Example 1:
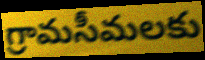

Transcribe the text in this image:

గ్రామసీమలకు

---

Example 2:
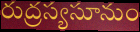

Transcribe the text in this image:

రుద్రస్యసూనుం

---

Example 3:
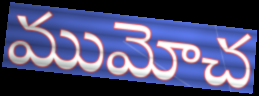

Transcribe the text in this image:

ముమోచ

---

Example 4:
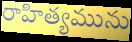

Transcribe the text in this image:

రాహిత్యమును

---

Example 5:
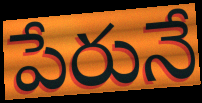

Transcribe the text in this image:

పేరునే